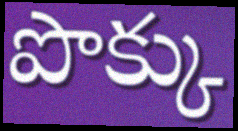
పొక్కు